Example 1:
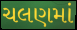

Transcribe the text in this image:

ચલણમાં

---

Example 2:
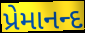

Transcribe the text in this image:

પ્રેમાનન્દ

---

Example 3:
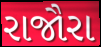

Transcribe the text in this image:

રાજૌરા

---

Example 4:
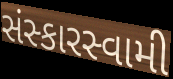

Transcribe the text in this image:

સંસ્કારસ્વામી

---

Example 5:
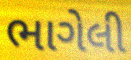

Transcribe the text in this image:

ભાગેલી